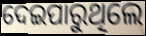
ଦେଇପାରୁଥିଲେ